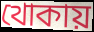
থোকায়